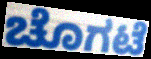
ಚೊಗಟೆ